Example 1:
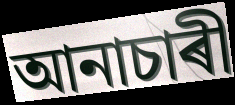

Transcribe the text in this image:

আনাচাৰী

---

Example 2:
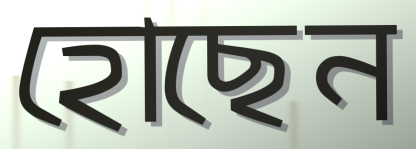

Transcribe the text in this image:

হোছেন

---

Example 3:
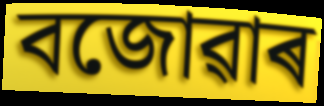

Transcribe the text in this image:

বজোৱাৰ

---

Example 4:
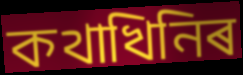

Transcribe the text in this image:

কথাখিনিৰ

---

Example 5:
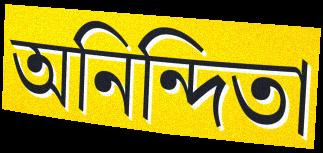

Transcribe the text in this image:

অনিন্দিতা